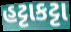
હટ્ટાકટ્ટા